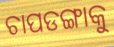
ଚାପଡଙ୍ଗାକୁ